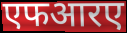
एफआरए